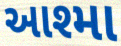
આશ્મા